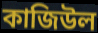
কাজিউল